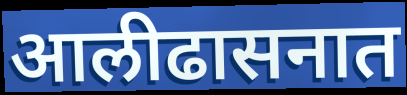
आलीढासनात